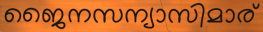
ജൈനസന്യാസിമാര്